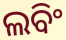
ଲବିଂ